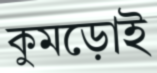
কুমড়োই